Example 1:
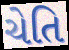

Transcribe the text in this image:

ચેતિ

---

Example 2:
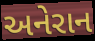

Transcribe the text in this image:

અનેરાન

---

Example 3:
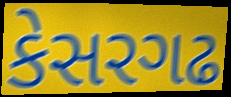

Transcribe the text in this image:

કેસરગઢ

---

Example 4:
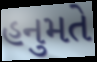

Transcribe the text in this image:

હનુમતે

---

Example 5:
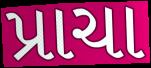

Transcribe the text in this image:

પ્રાચા